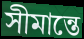
সীমান্তে